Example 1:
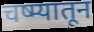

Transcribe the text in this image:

चष्म्यातून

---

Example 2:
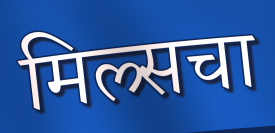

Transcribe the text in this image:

मिल्सचा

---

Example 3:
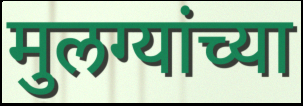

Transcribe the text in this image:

मुलग्यांच्या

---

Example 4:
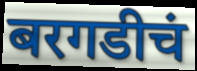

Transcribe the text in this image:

बरगडीचं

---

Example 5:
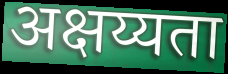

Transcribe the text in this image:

अक्षय्यता